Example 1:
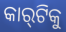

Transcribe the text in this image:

କାର୍‌ଟିକୁ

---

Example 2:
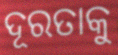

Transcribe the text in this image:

ଦୂରତାକୁ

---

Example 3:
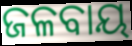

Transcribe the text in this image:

ଜଳବାୟ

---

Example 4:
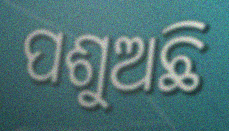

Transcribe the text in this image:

ପଶୁଅଛି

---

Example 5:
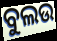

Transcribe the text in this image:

ବୁଲଉ